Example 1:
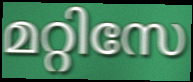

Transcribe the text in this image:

മറ്റിസേ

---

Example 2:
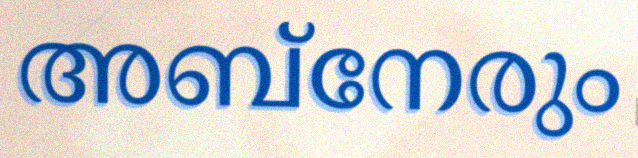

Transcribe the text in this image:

അബ്നേരും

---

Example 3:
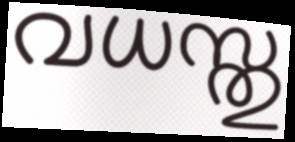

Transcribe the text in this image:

വധസ്തു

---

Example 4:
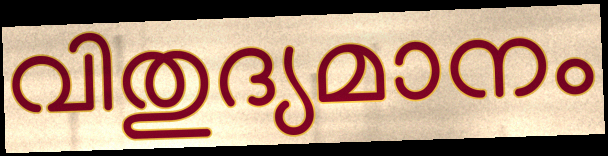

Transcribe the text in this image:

വിതുദ്യമാനം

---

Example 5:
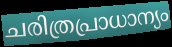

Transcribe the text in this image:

ചരിത്രപ്രാധാന്യം